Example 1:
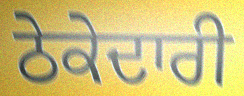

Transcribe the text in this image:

ਠੇਕੇਦਾਰੀ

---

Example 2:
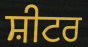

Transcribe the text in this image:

ਸ਼ੀਟਰ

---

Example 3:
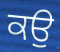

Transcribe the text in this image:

ਕਉ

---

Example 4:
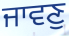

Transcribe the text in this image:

ਜਾਵਣੁ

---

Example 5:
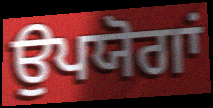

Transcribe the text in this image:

ਉਪਯੋਗਾਂ